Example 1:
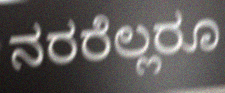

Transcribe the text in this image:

ನರರೆಲ್ಲರೂ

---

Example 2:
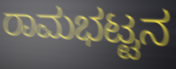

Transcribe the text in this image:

ರಾಮಭಟ್ಟನ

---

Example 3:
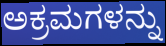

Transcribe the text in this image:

ಅಕ್ರಮಗಳನ್ನು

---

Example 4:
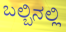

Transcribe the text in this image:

ಬಲ್ಬಿನಲ್ಲಿ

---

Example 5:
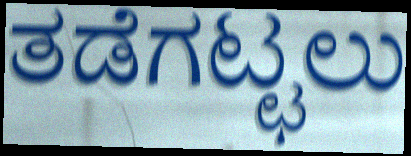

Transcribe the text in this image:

ತಡೆಗಟ್ಟಲು